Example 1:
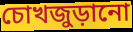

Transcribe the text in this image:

চোখজুড়ানো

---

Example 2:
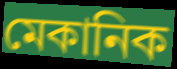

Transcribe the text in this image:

মেকানিক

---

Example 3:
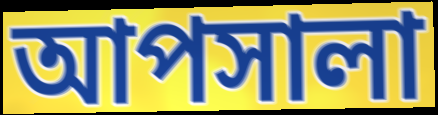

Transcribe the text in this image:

আপসালা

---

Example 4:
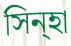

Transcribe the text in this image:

সিন্হা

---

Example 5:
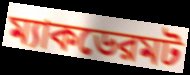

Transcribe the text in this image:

ম্যাকডেরমট